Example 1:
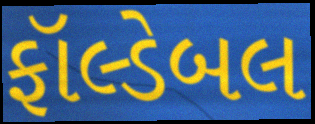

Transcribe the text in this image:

ફૉલ્ડેબલ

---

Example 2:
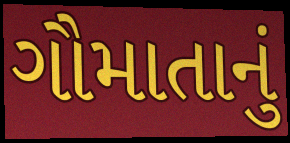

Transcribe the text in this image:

ગૌમાતાનું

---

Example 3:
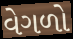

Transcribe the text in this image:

વેગળો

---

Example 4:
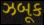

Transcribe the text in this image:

ઝબૂક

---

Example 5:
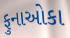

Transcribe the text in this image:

ફુનાઓકા